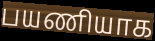
பயணியாக